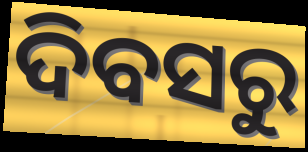
ଦିବସରୁ